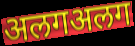
अलगअलग